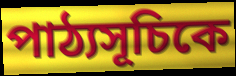
পাঠ্যসূচিকে